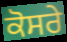
ਕੋਸਰੇ